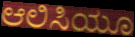
ಆಲಿಸಿಯೂ